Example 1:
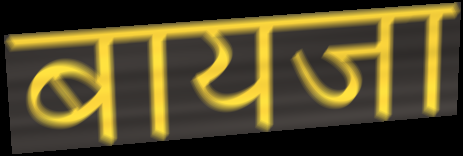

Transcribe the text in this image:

बायजा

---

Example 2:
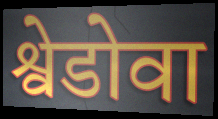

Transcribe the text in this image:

श्वेडोवा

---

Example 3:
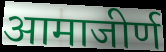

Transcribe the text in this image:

आमाजीर्ण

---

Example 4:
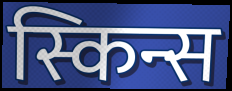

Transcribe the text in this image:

स्किन्स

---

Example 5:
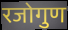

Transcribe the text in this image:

रजोगुण